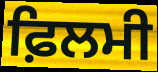
ਫ਼ਿਲਮੀ